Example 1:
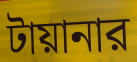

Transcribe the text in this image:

টায়ানার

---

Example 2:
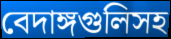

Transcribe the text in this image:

বেদাঙ্গগুলিসহ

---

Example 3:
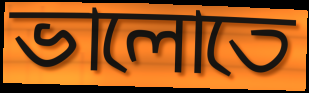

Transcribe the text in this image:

ভালোতে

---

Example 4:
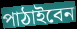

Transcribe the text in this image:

পাঠাইবেন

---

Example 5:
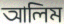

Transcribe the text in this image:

আলিম